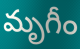
మృగీం